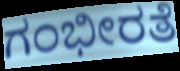
ಗಂಭೀರತೆ